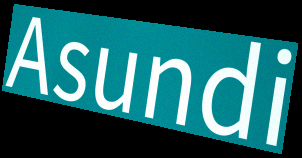
Asundi